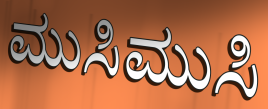
ಮುಸಿಮುಸಿ